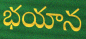
భయాన